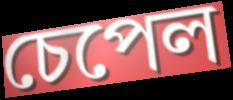
চেপেল